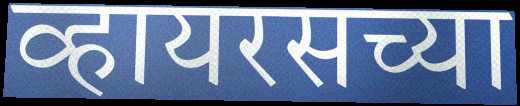
व्हायरसच्या